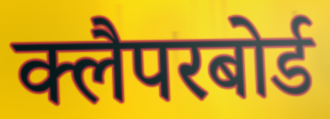
क्लैपरबोर्ड